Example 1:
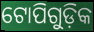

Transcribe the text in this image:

ଟୋପିଗୁଡ଼ିକ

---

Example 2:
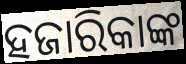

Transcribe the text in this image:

ହଜାରିକାଙ୍କ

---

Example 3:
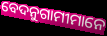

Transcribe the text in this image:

ବେଦନୁଗାମୀମାନେ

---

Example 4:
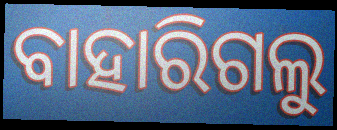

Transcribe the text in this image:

ବାହାରିଗଲୁ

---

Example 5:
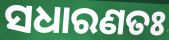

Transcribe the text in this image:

ସଧାରଣତଃ